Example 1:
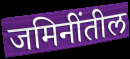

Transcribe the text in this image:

जमिनींतील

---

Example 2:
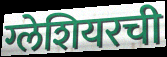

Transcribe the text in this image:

ग्लेशियरची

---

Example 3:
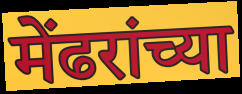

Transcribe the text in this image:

मेंढरांच्या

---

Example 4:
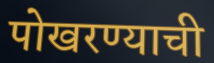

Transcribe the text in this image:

पोखरण्याची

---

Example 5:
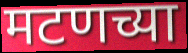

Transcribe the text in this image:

मटणच्या